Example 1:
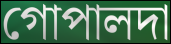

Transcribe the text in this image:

গোপালদা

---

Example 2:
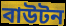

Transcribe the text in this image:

বাউটন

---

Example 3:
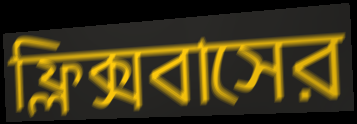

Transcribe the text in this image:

ফ্লিক্সবাসের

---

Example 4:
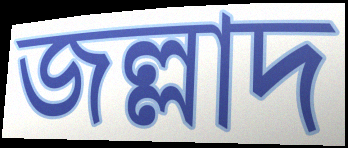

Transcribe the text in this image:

জল্লাদ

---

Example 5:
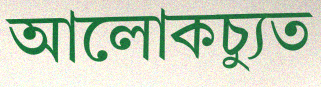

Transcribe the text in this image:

আলোকচ্যুত